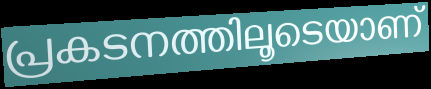
പ്രകടനത്തിലൂടെയാണ്